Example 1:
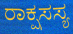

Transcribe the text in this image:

ರಾಕ್ಷಸಸ್ಯ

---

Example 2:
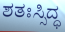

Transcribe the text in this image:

ಶತಃಸ್ಸಿದ್ಧ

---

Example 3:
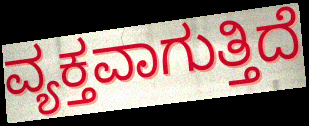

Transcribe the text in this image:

ವ್ಯಕ್ತವಾಗುತ್ತಿದೆ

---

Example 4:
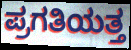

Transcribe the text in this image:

ಪ್ರಗತಿಯತ್ತ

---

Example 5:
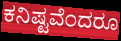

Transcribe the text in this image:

ಕನಿಷ್ಟವೆಂದರೂ